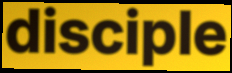
disciple